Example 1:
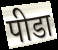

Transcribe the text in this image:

पीडा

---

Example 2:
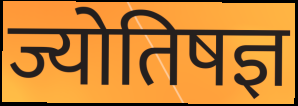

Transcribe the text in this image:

ज्योतिषज्ञ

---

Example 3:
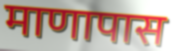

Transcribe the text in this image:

माणापास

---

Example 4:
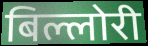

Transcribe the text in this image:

बिल्लोरी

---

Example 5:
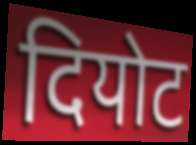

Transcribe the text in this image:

दियोट